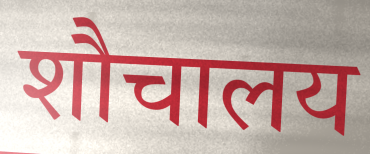
शौचालय